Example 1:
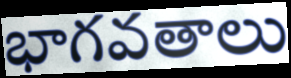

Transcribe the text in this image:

భాగవతాలు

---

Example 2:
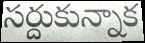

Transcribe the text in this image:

సర్దుకున్నాక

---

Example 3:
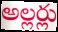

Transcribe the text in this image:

అల్లర్లు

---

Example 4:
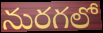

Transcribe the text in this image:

నురగలో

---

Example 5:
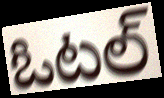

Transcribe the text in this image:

ఓటల్